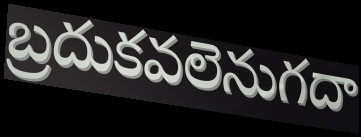
బ్రదుకవలెనుగదా